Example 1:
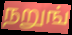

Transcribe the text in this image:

நறுங்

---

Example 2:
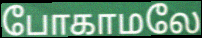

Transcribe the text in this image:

போகாமலே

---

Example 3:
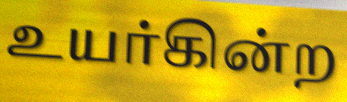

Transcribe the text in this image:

உயர்கின்ற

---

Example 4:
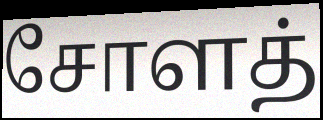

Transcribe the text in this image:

சோளத்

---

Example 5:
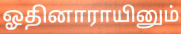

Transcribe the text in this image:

ஓதினாராயினும்